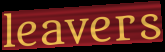
leavers